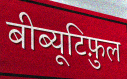
बीब्यूटिफ़ुल